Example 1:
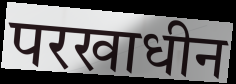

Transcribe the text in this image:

परखाधीन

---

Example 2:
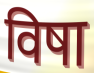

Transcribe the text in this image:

विषा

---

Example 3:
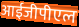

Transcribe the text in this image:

आईजीपीएल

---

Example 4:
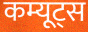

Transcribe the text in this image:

कम्यूट्स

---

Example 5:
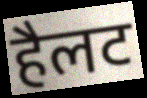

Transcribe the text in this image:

हैलट